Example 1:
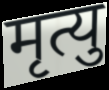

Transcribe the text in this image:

मृत्यु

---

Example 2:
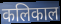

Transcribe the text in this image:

कलिकाल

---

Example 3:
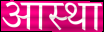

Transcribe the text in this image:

आस्था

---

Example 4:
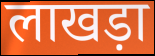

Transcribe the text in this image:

लाखड़ा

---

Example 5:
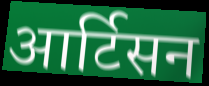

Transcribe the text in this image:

आर्टिसन